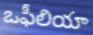
ఒఫీలియా